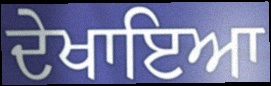
ਦੇਖਾਇਆ